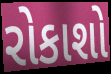
રોકાશો